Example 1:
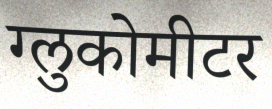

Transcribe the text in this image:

ग्लुकोमीटर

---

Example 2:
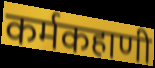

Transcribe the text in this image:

कर्मकहाणी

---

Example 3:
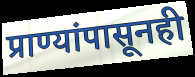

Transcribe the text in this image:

प्राण्यांपासूनही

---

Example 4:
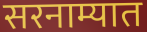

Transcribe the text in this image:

सरनाम्यात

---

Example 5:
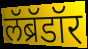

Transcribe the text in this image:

लॅब्रॅडॉर